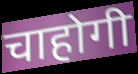
चाहोगी